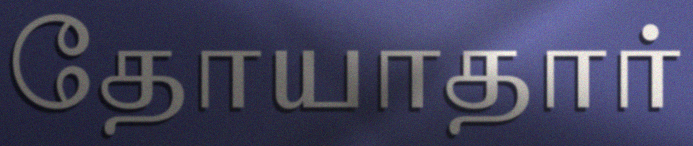
தோயாதார்